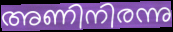
അണിനിരന്നു